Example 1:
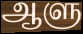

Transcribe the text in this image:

ஆளு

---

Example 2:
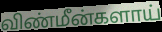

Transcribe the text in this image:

விண்மீன்களாய்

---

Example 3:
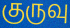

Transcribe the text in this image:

குருவு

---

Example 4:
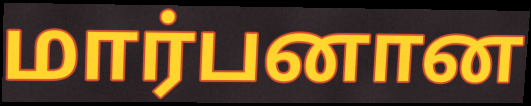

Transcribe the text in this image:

மார்பனான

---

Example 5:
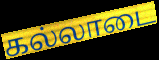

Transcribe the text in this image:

கல்லாடை